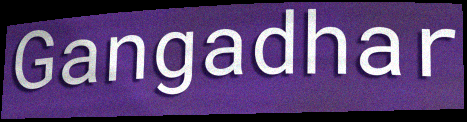
Gangadhar